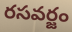
రసవర్జం